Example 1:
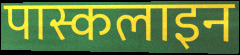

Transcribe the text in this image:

पास्कलाइन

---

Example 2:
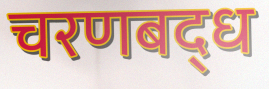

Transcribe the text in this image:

चरणबद्ध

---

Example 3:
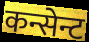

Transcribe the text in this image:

कन्सेन्ट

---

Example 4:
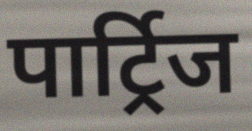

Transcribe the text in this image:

पार्ट्रिज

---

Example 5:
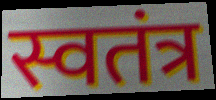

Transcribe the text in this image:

स्‍वतंत्र